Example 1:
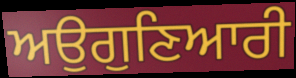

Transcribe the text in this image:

ਅਉਗੁਣਿਆਰੀ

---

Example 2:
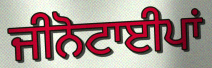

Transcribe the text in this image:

ਜੀਨੋਟਾਈਪਾਂ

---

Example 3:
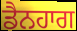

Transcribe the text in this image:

ਡੈਨਹਾਗ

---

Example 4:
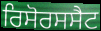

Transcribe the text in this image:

ਰਿਸੋਰਸਸੈਟ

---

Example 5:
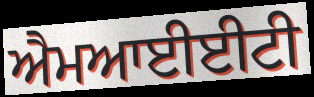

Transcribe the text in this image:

ਐਮਆਈਈਟੀ